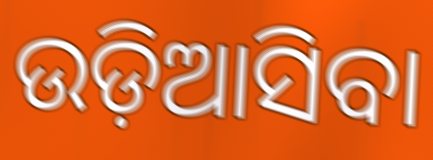
ଉଡ଼ିଆସିବା